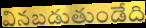
వినబడుతుండేది